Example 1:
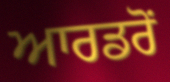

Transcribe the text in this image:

ਆਰਡਰੋਂ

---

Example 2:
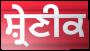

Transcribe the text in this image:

ਸ਼੍ਰੇਣੀਕ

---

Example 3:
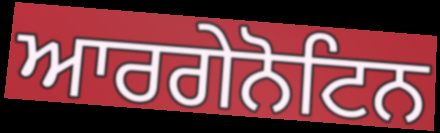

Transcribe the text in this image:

ਆਰਗੇਨੋਟਿਨ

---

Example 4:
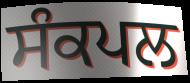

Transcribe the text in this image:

ਸੰਕਪਲ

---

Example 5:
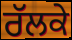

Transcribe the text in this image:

ਰੱਲਕੇ